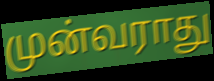
முன்வராது